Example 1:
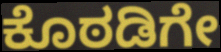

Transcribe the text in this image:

ಕೊಠಡಿಗೇ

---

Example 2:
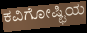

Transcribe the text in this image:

ಕವಿಗೋಷ್ಟಿಯ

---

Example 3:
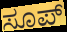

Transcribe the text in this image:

ಸೂಪ್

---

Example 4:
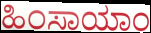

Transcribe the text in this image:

ಹಿಂಸಾಯಾಂ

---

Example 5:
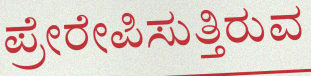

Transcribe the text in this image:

ಪ್ರೇರೇಪಿಸುತ್ತಿರುವ